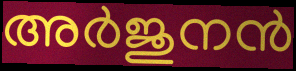
അർജുനൻ